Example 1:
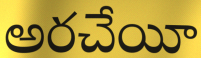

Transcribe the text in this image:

అరచేయీ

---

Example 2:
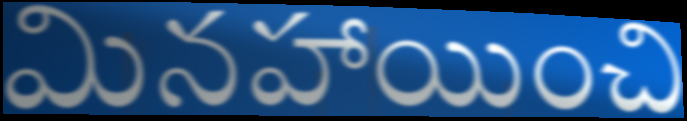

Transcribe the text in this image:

మినహాయించి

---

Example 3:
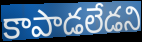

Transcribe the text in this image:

కాపాడలేడని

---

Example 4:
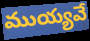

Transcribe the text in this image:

ముయ్యవే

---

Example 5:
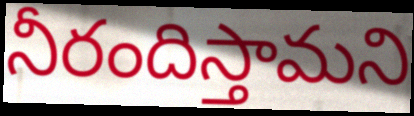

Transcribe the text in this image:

నీరందిస్తామని